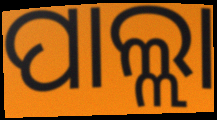
ପାଲ୍ଲା